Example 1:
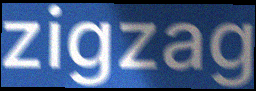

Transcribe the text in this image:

zigzag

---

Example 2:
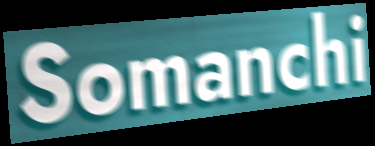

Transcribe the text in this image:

Somanchi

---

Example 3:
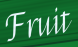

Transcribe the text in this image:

Fruit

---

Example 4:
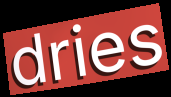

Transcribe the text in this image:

dries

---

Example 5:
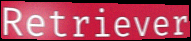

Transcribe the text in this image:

Retriever